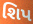
શિપ